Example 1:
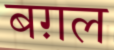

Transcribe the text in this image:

बग़ल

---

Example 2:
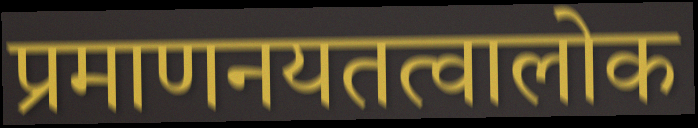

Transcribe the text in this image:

प्रमाणनयतत्वालोक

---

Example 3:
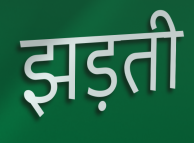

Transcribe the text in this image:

झड़ती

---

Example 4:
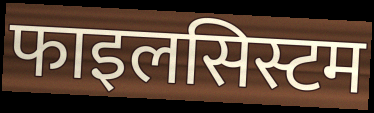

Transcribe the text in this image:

फाइलसिस्टम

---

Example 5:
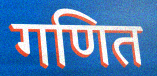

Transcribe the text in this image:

गणित